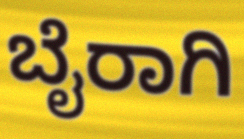
ಬೈರಾಗಿ